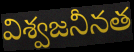
విశ్వజనీనత